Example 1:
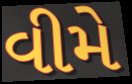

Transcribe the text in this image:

વીમે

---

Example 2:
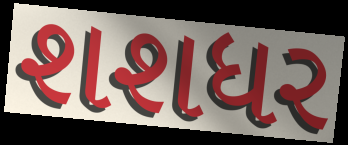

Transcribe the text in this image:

શશધર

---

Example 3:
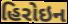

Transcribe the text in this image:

હિરોઇન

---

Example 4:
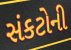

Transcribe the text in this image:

સંકટોની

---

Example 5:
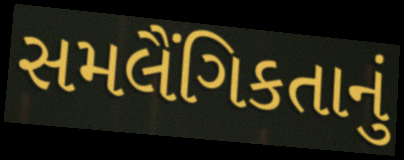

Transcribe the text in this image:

સમલૈંગિકતાનું